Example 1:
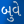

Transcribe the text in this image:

બુવે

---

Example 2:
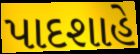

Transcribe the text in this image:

પાદશાહે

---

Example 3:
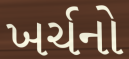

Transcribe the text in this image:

ખર્ચનો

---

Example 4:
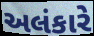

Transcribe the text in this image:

અલંકારે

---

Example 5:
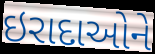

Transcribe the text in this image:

ઇરાદાઓને